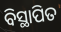
ବିସ୍ଥାପିତ